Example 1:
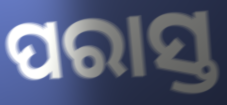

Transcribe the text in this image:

ପରାସ୍ତ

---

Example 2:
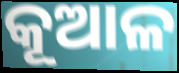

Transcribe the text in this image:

କୂଆଳ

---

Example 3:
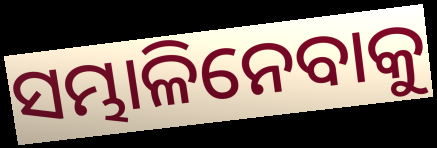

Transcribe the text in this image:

ସମ୍ଭାଳିନେବାକୁ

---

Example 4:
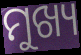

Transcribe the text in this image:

ମୁଖ୍ୟ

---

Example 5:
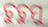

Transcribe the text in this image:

ଚୁଚୁମୁ